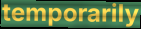
temporarily